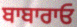
ਬਾਬਾਰਾਓ